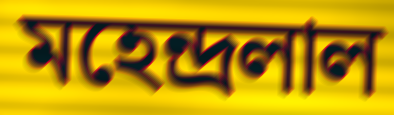
মহেন্দ্রলাল